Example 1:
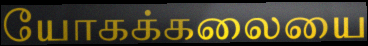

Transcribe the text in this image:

யோகக்கலையை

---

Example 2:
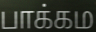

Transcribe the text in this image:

பாக்கம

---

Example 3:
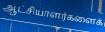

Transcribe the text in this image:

ஆட்சியாளர்களைக்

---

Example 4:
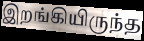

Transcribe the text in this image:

இறங்கியிருந்த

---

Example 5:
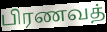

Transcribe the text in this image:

பிரணவத்